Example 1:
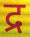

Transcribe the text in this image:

द्र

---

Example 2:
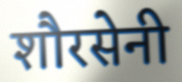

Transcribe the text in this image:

शौरसेनी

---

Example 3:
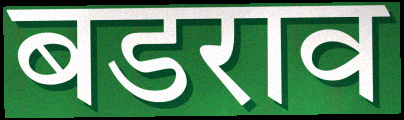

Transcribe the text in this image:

बडराव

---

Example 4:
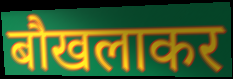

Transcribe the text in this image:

बौखलाकर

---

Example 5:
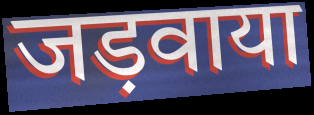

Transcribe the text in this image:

जड़वाया